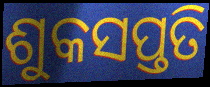
ଶୁକସପ୍ତତି